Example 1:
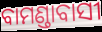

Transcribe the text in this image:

ବାମଣ୍ଡାବାସୀ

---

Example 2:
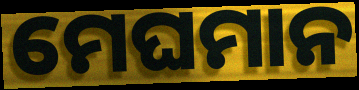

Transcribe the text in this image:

ମେଘମାନ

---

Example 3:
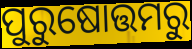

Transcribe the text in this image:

ପୁରୁଷୋତ୍ତମରୁ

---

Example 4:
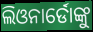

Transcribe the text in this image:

ଲିଓନାର୍ଡୋଙ୍କୁ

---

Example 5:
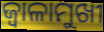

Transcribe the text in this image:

ଜ୍ୱାଳାମୁଖୀ